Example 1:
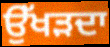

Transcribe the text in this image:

ਉੱਖੜਦਾ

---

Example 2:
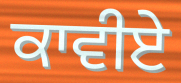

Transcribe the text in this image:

ਕਾਵੀਏ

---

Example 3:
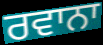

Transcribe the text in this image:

ਰਵਾਨਾ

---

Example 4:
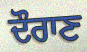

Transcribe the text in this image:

ਦੌਰਾਣ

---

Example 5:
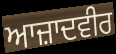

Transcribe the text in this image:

ਆਜ਼ਾਦਵੀਰ